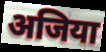
अजिया